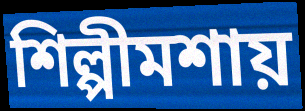
শিল্পীমশায়